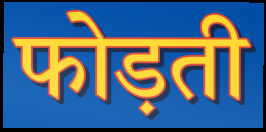
फोड़ती